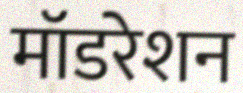
मॉडरेशन